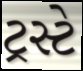
ટ્રસ્ટે